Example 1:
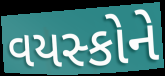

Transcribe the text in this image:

વયસ્કોને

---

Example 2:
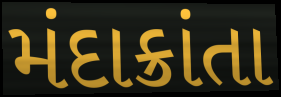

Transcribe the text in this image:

મંદાક્રાંતા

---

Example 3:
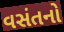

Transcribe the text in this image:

વસંતનો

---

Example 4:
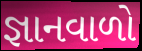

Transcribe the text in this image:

જ્ઞાનવાળો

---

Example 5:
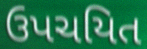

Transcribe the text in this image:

ઉપચયિત